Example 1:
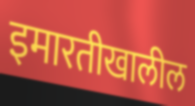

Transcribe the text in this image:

इमारतीखालील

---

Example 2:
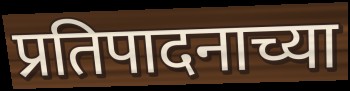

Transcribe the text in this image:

प्रतिपादनाच्या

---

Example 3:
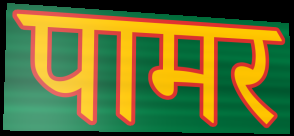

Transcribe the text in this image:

पामर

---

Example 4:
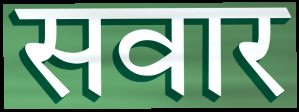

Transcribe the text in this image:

सवार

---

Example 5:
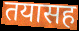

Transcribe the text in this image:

तयासह